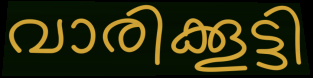
വാരിക്കൂട്ടി